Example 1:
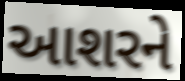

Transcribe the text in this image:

આશરને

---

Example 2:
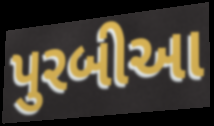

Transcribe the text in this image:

પુરબીઆ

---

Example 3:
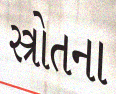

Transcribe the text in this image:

સ્ત્રોતના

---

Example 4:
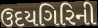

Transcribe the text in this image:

ઉદયગિરિની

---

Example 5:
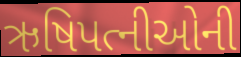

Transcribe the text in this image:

ઋષિપત્નીઓની